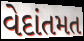
વેદાંતમત